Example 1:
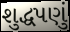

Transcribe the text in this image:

શુદ્ધપણું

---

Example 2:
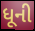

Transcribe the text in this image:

ધૂની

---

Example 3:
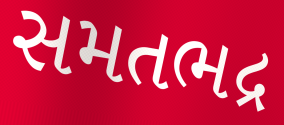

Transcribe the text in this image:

સમતભદ્ર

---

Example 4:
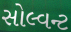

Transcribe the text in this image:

સોલ્વન્ટ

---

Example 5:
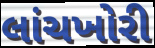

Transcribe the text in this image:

લાંચખોરી